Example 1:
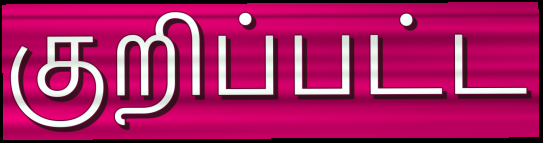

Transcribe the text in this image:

குறிப்பட்ட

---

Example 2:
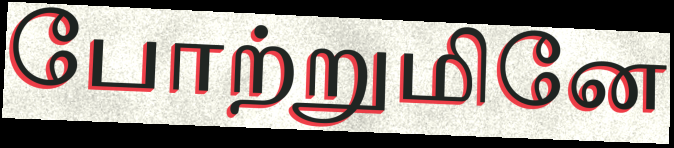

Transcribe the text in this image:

போற்றுமினே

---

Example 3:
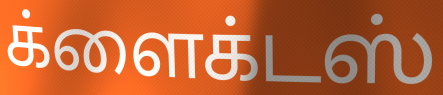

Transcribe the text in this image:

க்ளைக்டஸ்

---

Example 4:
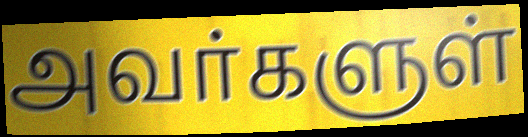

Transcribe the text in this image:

அவர்களுள்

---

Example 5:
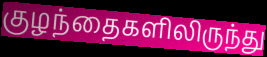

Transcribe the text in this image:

குழந்தைகளிலிருந்து